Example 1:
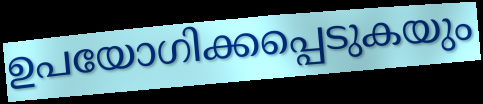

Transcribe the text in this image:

ഉപയോഗിക്കപ്പെടുകയും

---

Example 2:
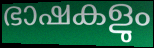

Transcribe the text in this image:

ഭാഷകളും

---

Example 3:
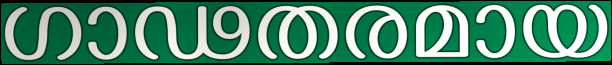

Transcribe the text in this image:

ഗാഢതരമായ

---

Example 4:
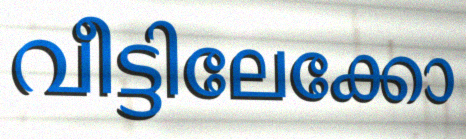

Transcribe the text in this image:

വീട്ടിലേക്കോ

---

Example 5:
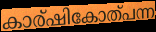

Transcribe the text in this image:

കാര്ഷികോത്പന്ന